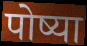
पोष्या